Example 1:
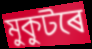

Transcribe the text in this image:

মুকুটৰে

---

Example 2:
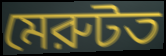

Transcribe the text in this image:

মেৰুটত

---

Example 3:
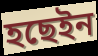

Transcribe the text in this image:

হছেইন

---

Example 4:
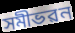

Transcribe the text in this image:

সমীভৱন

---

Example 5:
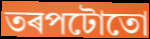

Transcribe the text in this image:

তৰপটোতো